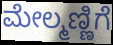
ಮೇಲ್ಮಣ್ಣಿಗೆ